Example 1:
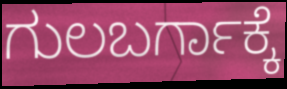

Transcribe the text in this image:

ಗುಲಬರ್ಗಾಕ್ಕೆ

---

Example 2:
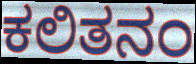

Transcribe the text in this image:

ಕಲಿತನಂ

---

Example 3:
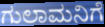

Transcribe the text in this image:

ಗುಲಾಮನಿಗೆ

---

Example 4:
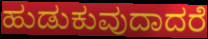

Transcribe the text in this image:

ಹುಡುಕುವುದಾದರೆ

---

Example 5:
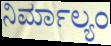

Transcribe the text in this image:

ನಿರ್ಮಾಲ್ಯಂ